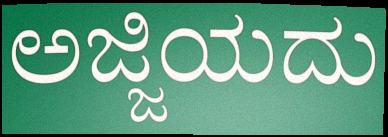
ಅಜ್ಜಿಯದು